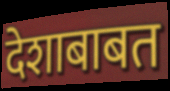
देशाबाबत